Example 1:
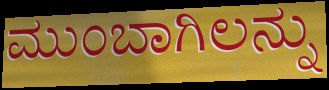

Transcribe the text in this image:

ಮುಂಬಾಗಿಲನ್ನು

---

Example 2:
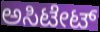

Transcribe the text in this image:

ಅಸಿಟೇಟ್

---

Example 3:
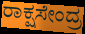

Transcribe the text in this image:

ರಾಕ್ಷಸೇಂದ್ರ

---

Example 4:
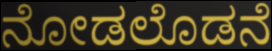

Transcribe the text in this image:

ನೋಡಲೊಡನೆ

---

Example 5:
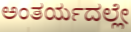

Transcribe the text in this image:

ಅಂತರ್ಯದಲ್ಲೇ